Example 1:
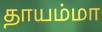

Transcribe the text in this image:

தாயம்மா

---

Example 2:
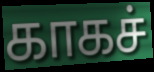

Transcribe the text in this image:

காகச்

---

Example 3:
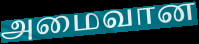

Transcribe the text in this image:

அமைவான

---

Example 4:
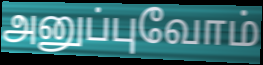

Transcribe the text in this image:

அனுப்புவோம்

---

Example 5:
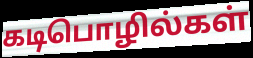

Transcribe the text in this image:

கடிபொழில்கள்